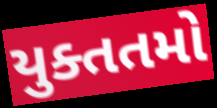
યુક્તતમો